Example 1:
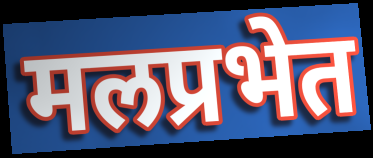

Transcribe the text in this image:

मलप्रभेत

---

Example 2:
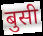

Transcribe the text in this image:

बुसी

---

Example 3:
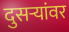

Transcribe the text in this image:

दुसर्‍यांवर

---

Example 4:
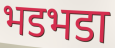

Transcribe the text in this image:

भडभडा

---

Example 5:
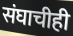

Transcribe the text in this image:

संघाचीही